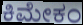
ಕಿಮೇಕಂ